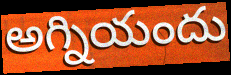
అగ్నియందు